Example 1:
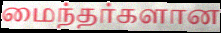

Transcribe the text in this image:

மைந்தர்களான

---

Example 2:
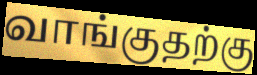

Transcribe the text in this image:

வாங்குதற்கு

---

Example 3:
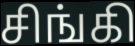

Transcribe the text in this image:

சிங்கி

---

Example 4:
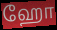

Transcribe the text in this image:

ஹோ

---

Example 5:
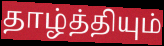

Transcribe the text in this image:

தாழ்த்தியும்